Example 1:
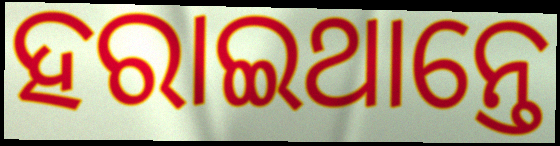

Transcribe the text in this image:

ହରାଇଥାନ୍ତେ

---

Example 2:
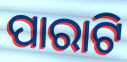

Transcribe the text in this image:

ପାରାଟି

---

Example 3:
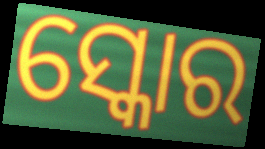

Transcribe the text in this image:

ସ୍କୋର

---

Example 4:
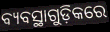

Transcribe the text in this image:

ବ୍ୟବସ୍ଥାଗୁଡ଼ିକରେ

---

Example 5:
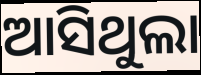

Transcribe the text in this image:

ଆସିଥୁଲା